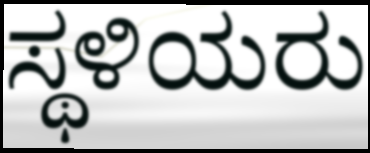
ಸ್ಥಳಿಯರು